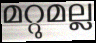
മറ്റുമല്ല